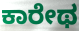
ಕಾರೇಥ